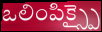
ఒలింపిక్స్పై